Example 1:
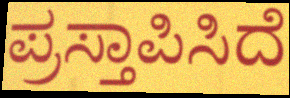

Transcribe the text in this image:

ಪ್ರಸ್ತಾಪಿಸಿದೆ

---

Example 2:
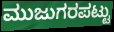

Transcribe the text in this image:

ಮುಜುಗರಪಟ್ಟು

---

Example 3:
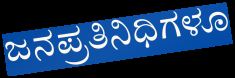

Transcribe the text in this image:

ಜನಪ್ರತಿನಿಧಿಗಳೂ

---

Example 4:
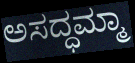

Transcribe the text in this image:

ಅಸದ್ಧಮ್ಮಾ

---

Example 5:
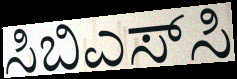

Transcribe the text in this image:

ಸಿಬಿಎಸ್‌ಸಿ